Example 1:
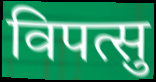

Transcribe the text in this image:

विपत्सु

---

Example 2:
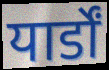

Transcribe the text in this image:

यार्डों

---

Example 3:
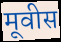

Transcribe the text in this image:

मूवीस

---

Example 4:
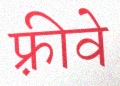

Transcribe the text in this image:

फ़्रीवे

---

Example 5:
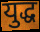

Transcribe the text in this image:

युद्ध